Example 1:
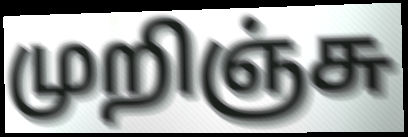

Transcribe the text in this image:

முறிஞ்சு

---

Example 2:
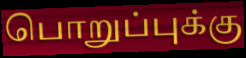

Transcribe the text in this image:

பொறுப்புக்கு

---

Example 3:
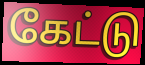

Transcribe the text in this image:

கேட்டு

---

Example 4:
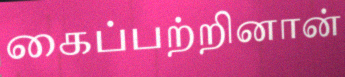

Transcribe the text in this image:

கைப்பற்றினான்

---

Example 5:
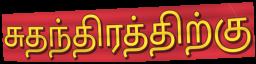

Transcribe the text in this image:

சுதந்திரத்திற்கு